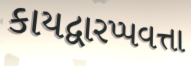
કાયદ્વારપ્પવત્તા